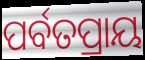
ପର୍ବତପ୍ରାୟ